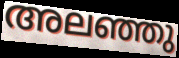
അലഞ്ഞു